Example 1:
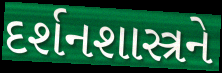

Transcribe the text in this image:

દર્શનશાસ્ત્રને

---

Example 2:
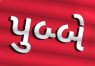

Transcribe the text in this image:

પુબ્બે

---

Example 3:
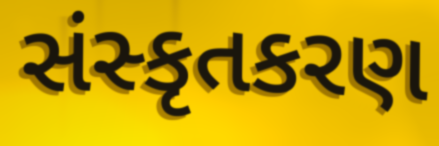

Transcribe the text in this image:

સંસ્કૃતકરણ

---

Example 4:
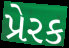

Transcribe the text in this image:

પ્રેરક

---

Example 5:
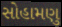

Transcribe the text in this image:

સોહામણુ